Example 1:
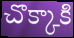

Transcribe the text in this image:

చొక్కాకి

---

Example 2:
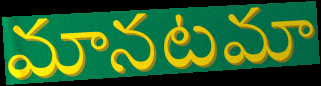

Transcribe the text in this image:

మానటమా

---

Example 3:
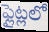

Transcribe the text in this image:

ఫ్లైట్లలో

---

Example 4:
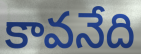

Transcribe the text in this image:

కావనేది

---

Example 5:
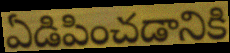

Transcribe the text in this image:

ఏడిపించడానికి